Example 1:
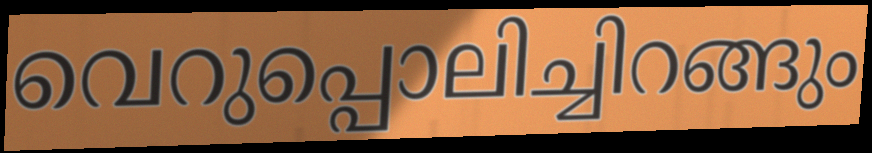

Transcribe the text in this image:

വെറുപ്പൊലിച്ചിറങ്ങും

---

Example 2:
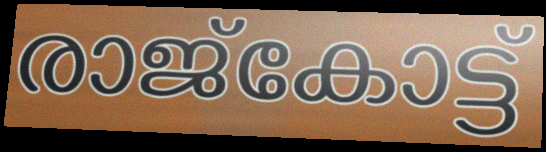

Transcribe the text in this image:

രാജ്കോട്ട്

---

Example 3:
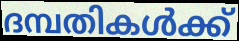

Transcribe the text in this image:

ദമ്പതികൾക്ക്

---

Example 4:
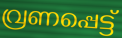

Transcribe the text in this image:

വ്രണപ്പെട്ട്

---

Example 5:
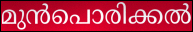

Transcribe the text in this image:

മുൻപൊരിക്കൽ